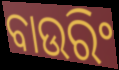
ବାଉରିଂ